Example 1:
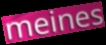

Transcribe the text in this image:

meines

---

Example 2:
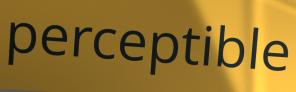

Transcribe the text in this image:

perceptible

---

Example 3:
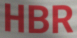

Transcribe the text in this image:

HBR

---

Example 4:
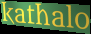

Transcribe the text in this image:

kathalo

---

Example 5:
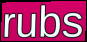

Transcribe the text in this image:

rubs